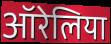
ऑरेलिया